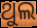
ଥୁଲ